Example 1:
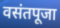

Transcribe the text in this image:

वसंतपूजा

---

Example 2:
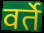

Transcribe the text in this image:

वर्ते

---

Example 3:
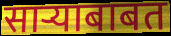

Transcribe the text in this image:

साऱ्याबाबत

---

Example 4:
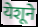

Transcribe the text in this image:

येशूने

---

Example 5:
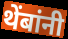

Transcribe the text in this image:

थेंबांनी